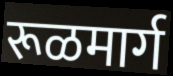
रूळमार्ग